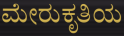
ಮೇರುಕೃತಿಯ